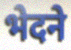
भेदने